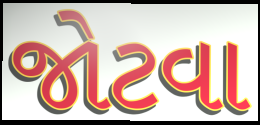
જોટવા